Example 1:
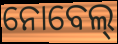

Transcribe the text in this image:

ନୋବେଲ୍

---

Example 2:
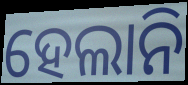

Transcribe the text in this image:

ହେଲାନି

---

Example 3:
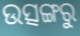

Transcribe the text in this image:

ଉତ୍ସଙ୍ଗରୁ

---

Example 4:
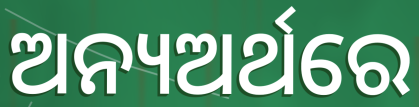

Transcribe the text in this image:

ଅନ୍ୟଅର୍ଥରେ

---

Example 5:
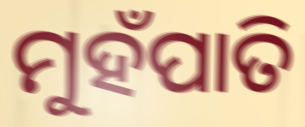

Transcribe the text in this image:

ମୁହଁପାତି